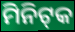
ମିନିଟ୍‌କ